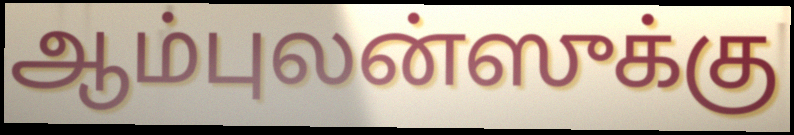
ஆம்புலன்ஸுக்கு